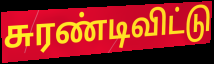
சுரண்டிவிட்டு